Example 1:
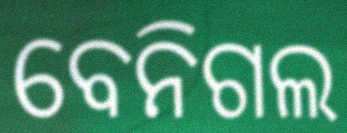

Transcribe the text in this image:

ବେନିଗଲ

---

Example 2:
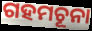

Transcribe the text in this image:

ଗହମଚୂନା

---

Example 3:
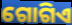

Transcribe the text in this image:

ଗୋଗିଏ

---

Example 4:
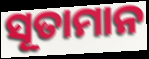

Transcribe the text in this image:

ସୂତାମାନ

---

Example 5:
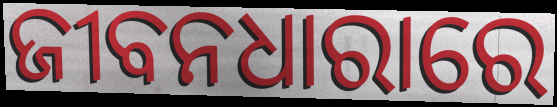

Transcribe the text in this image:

ଜୀବନଧାରାରେ